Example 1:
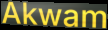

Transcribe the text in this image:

Akwam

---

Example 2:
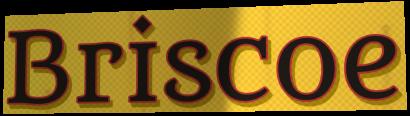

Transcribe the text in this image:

Briscoe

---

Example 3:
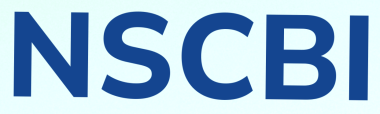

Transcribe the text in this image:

NSCBI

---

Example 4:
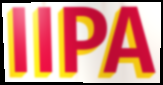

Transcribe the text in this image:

IIPA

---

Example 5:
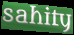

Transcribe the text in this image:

sahity